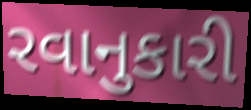
રવાનુકારી